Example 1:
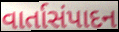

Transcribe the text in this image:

વાર્તાસંપાદન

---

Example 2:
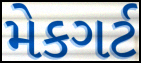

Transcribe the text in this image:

મેકગર્ટ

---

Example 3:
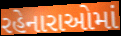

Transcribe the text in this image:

રહેનારાઓમાં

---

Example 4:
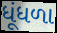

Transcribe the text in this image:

ધૂંધળા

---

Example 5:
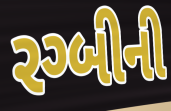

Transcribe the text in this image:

રગ્બીની